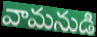
వామనుడి